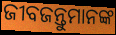
ଜୀବଜନ୍ତୁମାନଙ୍କ